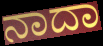
ನಾದಾ